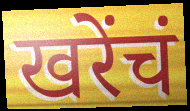
खरेंचं